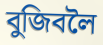
বুজিবলৈ